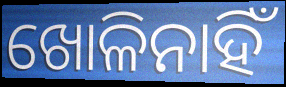
ଖୋଳିନାହିଁ